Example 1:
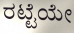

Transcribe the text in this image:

ರಟ್ಟೆಯೇ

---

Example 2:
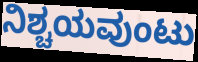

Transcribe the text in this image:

ನಿಶ್ಚಯವುಂಟು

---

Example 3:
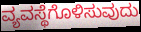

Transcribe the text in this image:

ವ್ಯವಸ್ಥೆಗೊಳಿಸುವುದು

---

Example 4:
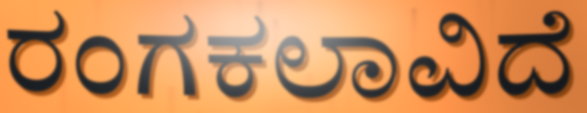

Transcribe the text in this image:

ರಂಗಕಲಾವಿದೆ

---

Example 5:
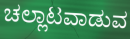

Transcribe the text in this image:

ಚಲ್ಲಾಟವಾಡುವ